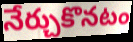
నేర్చుకొనటం